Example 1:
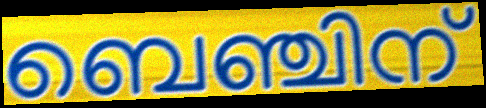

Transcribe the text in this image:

ബെഞ്ചിന്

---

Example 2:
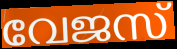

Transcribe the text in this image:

വേജസ്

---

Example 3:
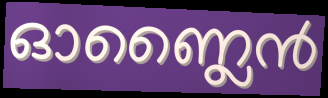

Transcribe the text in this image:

ഓണ്ലൈൻ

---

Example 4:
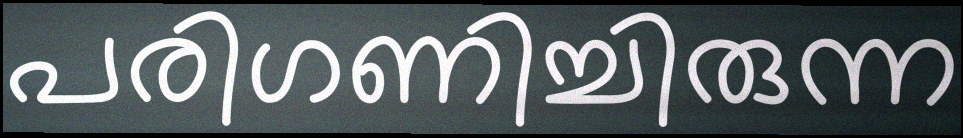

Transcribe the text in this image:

പരിഗണിച്ചിരുന്ന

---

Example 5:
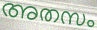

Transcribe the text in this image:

അതസം